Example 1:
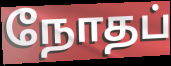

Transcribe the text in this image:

நோதப்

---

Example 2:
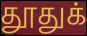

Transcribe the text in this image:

தூதுக்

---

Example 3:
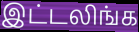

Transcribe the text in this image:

இட்டலிங்க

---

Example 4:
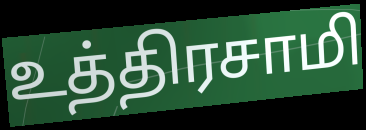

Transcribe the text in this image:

உத்திரசாமி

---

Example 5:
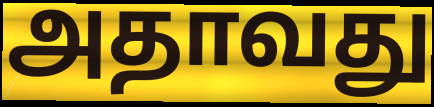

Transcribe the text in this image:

அதாவது